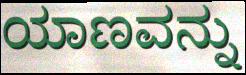
ಯಾಣವನ್ನು